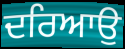
ਦਰਿਆਉ